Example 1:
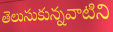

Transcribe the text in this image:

తెలుసుకున్నవాటిని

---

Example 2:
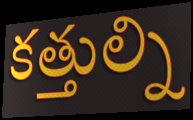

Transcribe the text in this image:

కత్తుల్ని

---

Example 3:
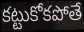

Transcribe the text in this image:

కట్టుకోకపోతే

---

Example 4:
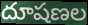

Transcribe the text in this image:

దూషణల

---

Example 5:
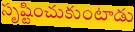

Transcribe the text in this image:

సృష్టించుకుంటాడు